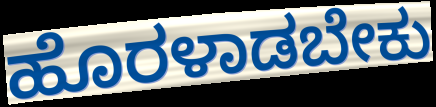
ಹೊರಳಾಡಬೇಕು